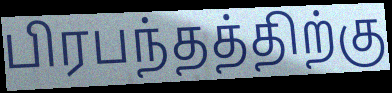
பிரபந்தத்திற்கு